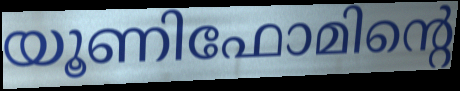
യൂണിഫോമിന്റെ